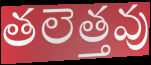
తలెత్తవు